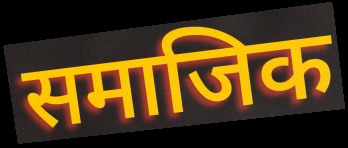
समाजिक